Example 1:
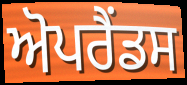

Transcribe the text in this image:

ਅੋਪਰੈਂਡਸ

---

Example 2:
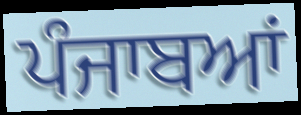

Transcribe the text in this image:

ਪੰਜਾਬਆਂ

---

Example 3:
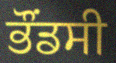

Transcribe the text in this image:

ਭੌਂਡਸੀ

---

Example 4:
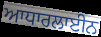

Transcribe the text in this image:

ਆਧਾਰਲਾਈਨ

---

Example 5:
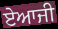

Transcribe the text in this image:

ਏਆਜੀ